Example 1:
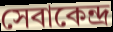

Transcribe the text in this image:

সেবাকেন্দ্র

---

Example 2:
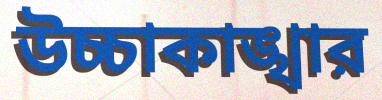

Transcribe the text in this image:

উচ্চাকাঙ্খার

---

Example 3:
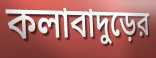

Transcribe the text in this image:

কলাবাদুড়ের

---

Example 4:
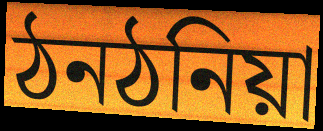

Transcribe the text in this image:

ঠনঠনিয়া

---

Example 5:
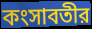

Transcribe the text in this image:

কংসাবতীর